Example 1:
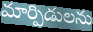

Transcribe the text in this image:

మార్పిడులను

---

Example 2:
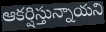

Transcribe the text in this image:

ఆకర్షిస్తున్నాయని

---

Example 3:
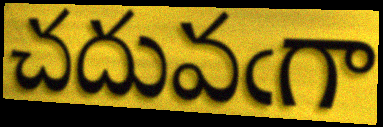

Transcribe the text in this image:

చదువఁగా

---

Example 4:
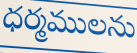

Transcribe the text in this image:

ధర్మములను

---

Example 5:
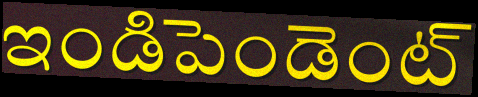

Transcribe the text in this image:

ఇండిపెండెంట్